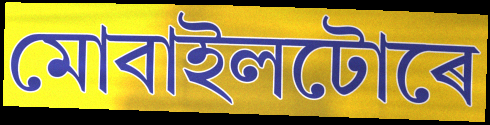
মোবাইলটোৰে